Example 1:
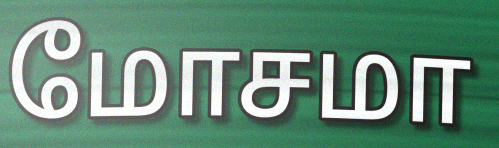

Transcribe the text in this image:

மோசமா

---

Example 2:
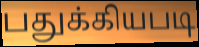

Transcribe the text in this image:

பதுக்கியபடி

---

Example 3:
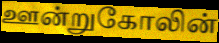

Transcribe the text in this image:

ஊன்றுகோலின்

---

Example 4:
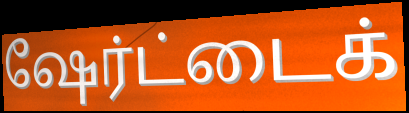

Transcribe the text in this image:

ஷேர்ட்டைக்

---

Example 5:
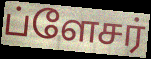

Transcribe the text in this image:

ப்ளேசர்